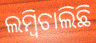
ଲମ୍ବିଚାଲିଛି